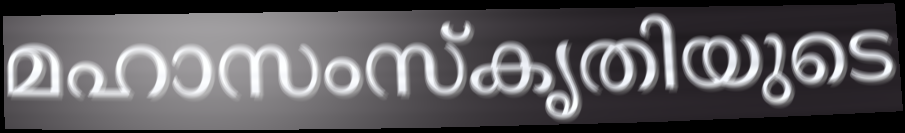
മഹാസംസ്കൃതിയുടെ